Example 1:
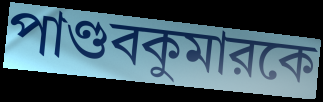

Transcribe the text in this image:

পাণ্ডবকুমারকে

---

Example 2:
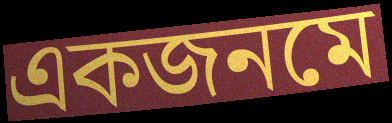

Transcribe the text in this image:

একজনমে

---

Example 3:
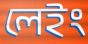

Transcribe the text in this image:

লেইং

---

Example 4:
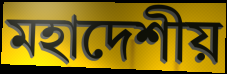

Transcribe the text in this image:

মহাদেশীয়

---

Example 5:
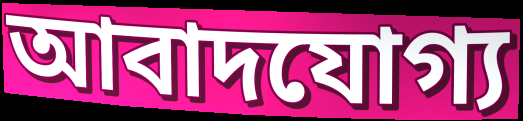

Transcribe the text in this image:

আবাদযোগ্য